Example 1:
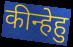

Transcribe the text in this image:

कीन्हेहु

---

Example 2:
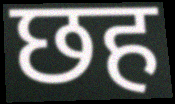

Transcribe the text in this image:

छह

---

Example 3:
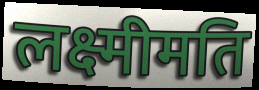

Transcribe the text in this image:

लक्ष्मीमति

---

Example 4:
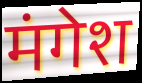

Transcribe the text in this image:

मंगेश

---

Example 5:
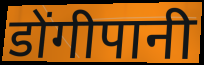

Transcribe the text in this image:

डोंगीपानी